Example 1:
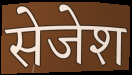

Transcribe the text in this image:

सेजेश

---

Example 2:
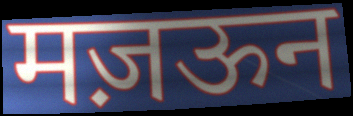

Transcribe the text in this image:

मज़ऊन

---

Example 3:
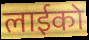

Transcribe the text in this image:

लाईको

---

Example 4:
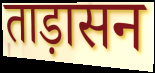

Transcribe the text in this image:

ताड़ासन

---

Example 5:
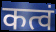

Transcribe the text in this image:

कत्वं